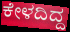
ಕೇಳದಿದ್ದ